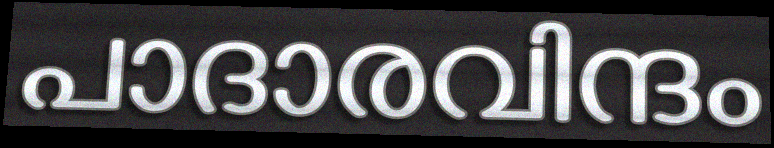
പാദാരവിന്ദം